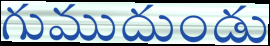
గుముదుండు